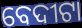
ବେଦୀଟା